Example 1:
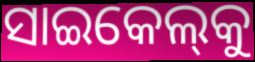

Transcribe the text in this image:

ସାଇକେଲ୍‌କୁ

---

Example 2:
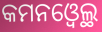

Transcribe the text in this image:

କମନଓ୍ବେଲ୍ଥ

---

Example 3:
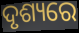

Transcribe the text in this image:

ଦୃଶ୍ୟରେ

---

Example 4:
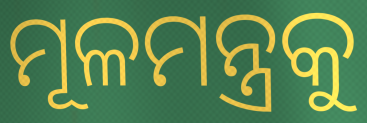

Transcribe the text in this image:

ମୂଳମନ୍ତ୍ରକୁ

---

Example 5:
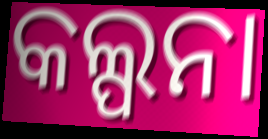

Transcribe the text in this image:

କଲ୍ପନା